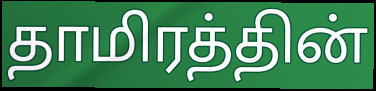
தாமிரத்தின்